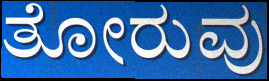
ತೋರುವು